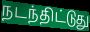
நடந்திட்டுது